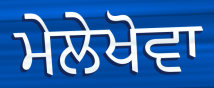
ਮੇਲੇਖੋਵਾ